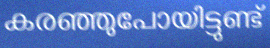
കരഞ്ഞുപോയിട്ടുണ്ട്